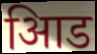
आिड